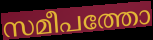
സമീപത്തോ